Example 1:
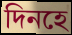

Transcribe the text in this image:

দিনহে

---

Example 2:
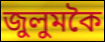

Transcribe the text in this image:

জুলুমকৈ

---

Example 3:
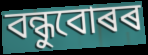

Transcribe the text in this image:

বন্ধুবোৰৰ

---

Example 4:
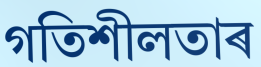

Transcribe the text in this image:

গতিশীলতাৰ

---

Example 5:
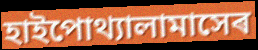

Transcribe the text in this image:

হাইপোথ্যালামাসেৰ